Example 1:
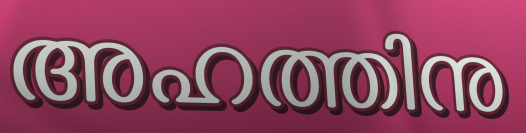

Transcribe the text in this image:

അഹത്തിനു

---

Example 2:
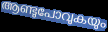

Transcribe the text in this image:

ആണ്ടുപോവുകയും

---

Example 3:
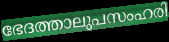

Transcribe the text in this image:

ഭേദത്താലുപസംഹരി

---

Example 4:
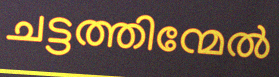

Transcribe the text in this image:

ചട്ടത്തിന്മേൽ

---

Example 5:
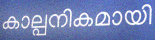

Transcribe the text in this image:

കാല്പനികമായി